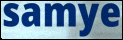
samye